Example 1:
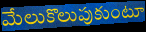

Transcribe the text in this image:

మేలుకొలుపుకుంటూ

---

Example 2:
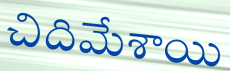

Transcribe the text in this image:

చిదిమేశాయి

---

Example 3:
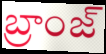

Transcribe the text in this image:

బ్రాంజ్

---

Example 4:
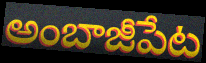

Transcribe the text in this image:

అంబాజీపేట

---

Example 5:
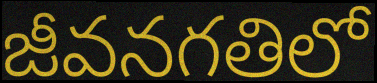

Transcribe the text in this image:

జీవనగతిలో